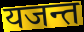
यजन्त